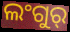
ଲଂଗୁର୍